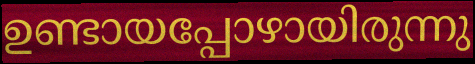
ഉണ്ടായപ്പോഴായിരുന്നു